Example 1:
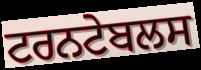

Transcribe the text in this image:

ਟਰਨਟੇਬਲਸ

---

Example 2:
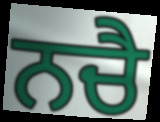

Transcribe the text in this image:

ਨਚੈ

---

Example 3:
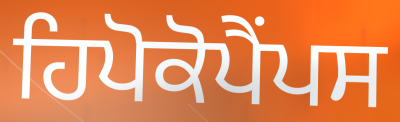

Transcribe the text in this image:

ਹਿਪੋਕੋਪੈਂਪਸ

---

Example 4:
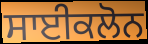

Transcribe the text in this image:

ਸਾਈਕਲੋਨ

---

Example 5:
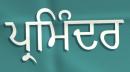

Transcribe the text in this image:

ਪ੍ਰਮਿੰਦਰ